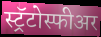
स्ट्रॅटोस्फीअर